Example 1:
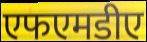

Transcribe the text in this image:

एफएमडीए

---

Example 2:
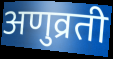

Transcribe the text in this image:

अणुव्रती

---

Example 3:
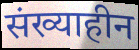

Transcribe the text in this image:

संख्याहीन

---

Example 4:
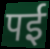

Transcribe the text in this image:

पई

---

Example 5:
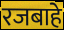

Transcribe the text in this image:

रजबाहे